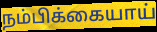
நம்பிக்கையாய்